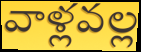
వాళ్లవల్ల